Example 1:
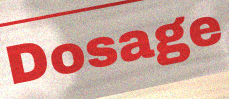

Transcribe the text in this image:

Dosage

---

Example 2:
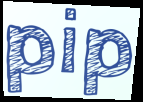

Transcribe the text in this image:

pip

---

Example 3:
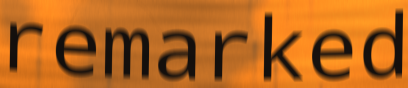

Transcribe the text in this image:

remarked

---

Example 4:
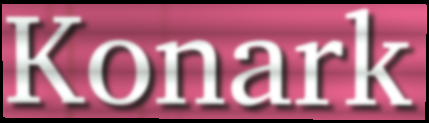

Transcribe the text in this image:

Konark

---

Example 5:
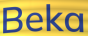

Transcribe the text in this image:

Beka